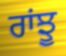
ਰਾਂਝੂ